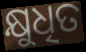
କ୍ଷୁଧିତ